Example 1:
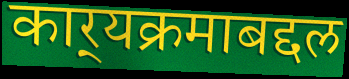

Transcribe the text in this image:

कार्यक्रमाबद्दल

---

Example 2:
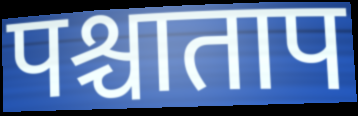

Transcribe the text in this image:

पश्चाताप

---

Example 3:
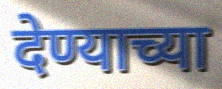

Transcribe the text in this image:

देण्याच्या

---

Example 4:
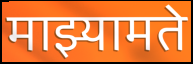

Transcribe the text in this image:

माझ्यामते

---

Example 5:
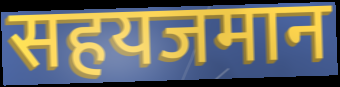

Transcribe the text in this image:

सहयजमान